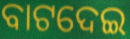
ବାଟଦେଇ